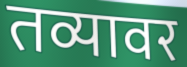
तव्यावर